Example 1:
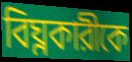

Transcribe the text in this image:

বিঘ্নকারীকে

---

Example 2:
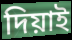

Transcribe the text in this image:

দিয়াই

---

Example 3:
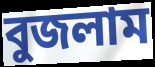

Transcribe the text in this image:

বুজলাম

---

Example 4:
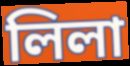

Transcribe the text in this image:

লিলা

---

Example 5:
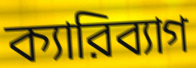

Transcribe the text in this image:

ক্যারিব্যাগ